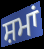
ਸ਼ਮਾਂ